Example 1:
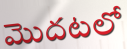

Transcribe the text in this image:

మొదటలో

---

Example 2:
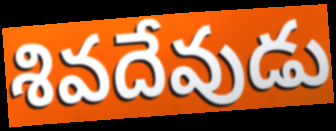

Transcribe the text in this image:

శివదేవుడు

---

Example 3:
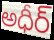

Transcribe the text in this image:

అధీర్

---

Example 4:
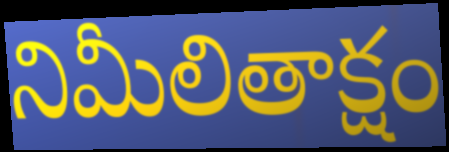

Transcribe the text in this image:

నిమీలితాక్షం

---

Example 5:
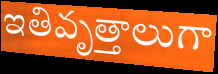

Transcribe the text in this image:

ఇతివృత్తాలుగా